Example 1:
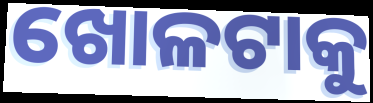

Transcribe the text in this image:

ଖୋଳଟାକୁ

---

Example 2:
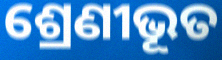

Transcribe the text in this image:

ଶ୍ରେଣୀଭୂତ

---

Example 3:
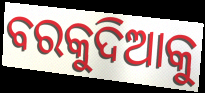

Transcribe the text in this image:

ବରକୁଦିଆକୁ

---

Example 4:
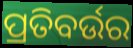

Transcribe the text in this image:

ପ୍ରତିବର୍ଉର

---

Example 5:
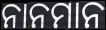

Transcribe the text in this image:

ନାନମାନ